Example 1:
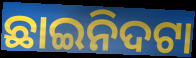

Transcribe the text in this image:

ଛାଇନିଦଟା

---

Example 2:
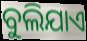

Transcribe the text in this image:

ବୁଲିଯାଏ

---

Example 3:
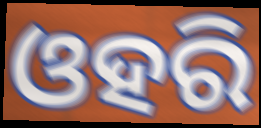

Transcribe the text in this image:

ଓହରି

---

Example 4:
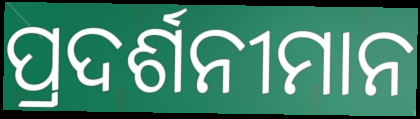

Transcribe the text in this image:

ପ୍ରଦର୍ଶନୀମାନ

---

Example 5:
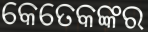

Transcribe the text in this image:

କେତେକଙ୍କର